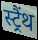
स्ट्रैंथ